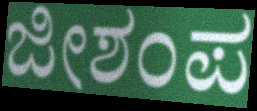
ಜೀಶಂಪ